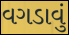
વગડાવું